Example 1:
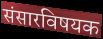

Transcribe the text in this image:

संसारविषयक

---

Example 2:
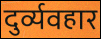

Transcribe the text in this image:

दुर्व्यवहार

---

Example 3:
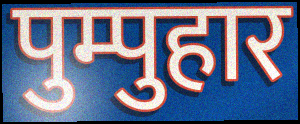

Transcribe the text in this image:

पुम्पुहार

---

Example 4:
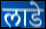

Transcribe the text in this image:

लाडे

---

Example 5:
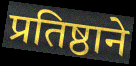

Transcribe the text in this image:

प्रतिष्ठाने